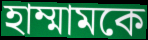
হাম্মামকে